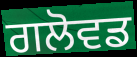
ਗਲੋਵਡ